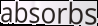
absorbs